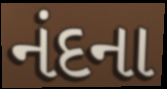
નંદના